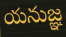
యనుజ్ఞ